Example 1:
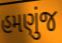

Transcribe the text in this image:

હમણુંજ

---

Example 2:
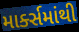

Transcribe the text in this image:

માર્ક્સમાંથી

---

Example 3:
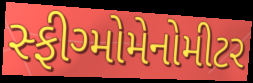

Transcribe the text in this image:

સ્ફીગ્મોમેનોમીટર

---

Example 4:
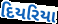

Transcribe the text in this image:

દિયરિયા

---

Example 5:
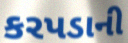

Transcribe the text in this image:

કરપડાની